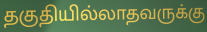
தகுதியில்லாதவருக்கு